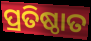
ପ୍ରତିଷ୍ଠାତ